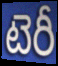
టెరీ